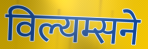
विल्यम्सने